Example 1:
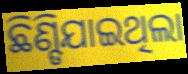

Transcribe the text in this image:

ଛିଣ୍ଡିଯାଇଥିଲା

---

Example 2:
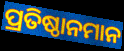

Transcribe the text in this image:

ପ୍ରତିଷ୍ଠାନମାନ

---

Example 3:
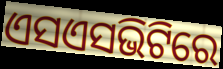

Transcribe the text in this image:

ଏସଏସଭିଟିରେ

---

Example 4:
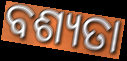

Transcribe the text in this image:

ବଶ୍ୟତା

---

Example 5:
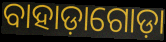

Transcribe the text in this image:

ବାହାଡ଼ାଗୋଡ଼ା